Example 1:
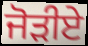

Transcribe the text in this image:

ਜੋੜੀਏ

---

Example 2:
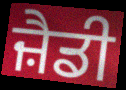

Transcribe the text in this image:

ਜ਼ੈਡੀ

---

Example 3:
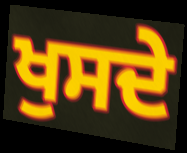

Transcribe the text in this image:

ਖੁਸਦੇ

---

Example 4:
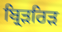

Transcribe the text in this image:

ਬ੍ਰਿੜਰਿੜ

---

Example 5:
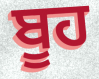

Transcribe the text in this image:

ਬੂਹ